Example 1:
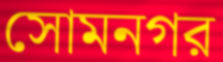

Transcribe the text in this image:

সোমনগর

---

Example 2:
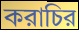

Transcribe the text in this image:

করাচির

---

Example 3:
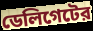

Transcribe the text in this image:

ডেলিগেটের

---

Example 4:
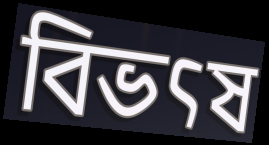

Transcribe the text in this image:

বিভৎষ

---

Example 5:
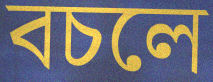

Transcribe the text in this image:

বচলে